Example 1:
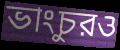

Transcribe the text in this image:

ভাংচুরও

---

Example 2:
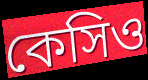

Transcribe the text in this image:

কেসিও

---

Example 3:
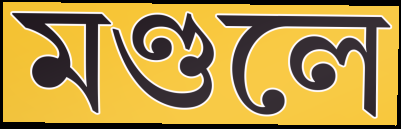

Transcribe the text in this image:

মণ্ডলে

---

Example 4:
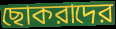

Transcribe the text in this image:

ছোকরাদের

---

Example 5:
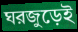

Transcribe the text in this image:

ঘরজুড়েই